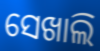
ସେଖାଲି